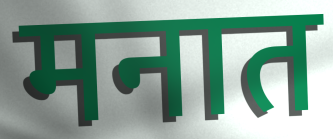
मनात